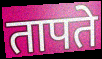
तापते